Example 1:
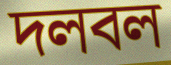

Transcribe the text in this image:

দলবল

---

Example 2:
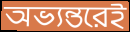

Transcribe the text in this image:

অভ্যন্তরেই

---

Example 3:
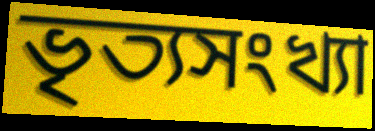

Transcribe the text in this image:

ভৃত্যসংখ্যা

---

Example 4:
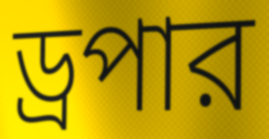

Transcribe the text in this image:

ড্রপার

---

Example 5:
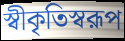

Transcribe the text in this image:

স্বীকৃতিস্বরূপ